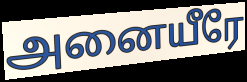
அனையீரே